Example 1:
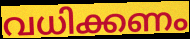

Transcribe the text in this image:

വധിക്കണം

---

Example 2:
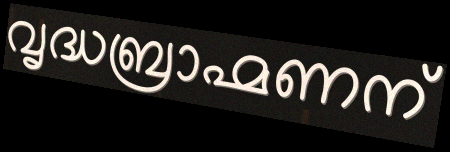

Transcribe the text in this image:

വൃദ്ധബ്രാഹ്മണന്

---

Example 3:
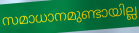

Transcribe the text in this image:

സമാധാനമുണ്ടായില്ല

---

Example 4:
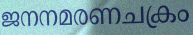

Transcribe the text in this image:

ജനനമരണചക്രം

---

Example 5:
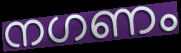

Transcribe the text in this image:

നഗണം